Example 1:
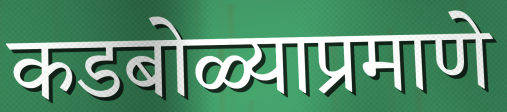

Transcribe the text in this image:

कडबोळ्याप्रमाणे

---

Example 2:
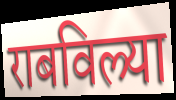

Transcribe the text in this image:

राबविल्या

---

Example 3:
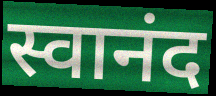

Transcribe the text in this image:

स्वानंद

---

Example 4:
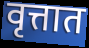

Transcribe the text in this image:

वृत्तात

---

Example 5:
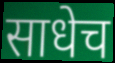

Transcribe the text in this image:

साधेच